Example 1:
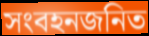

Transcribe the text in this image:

সংবহনজনিত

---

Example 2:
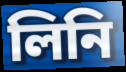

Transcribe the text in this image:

লিনি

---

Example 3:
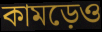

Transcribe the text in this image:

কামড়েও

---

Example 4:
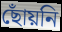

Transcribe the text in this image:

ছোঁয়নি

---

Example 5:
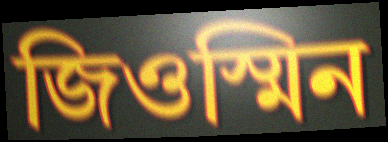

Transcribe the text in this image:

জিওস্মিন